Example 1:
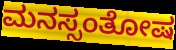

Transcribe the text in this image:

ಮನಸ್ಸಂತೋಷ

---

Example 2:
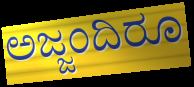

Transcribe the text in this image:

ಅಜ್ಜಂದಿರೂ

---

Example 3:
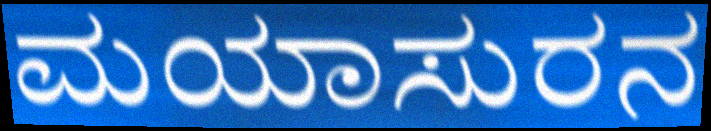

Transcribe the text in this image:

ಮಯಾಸುರನ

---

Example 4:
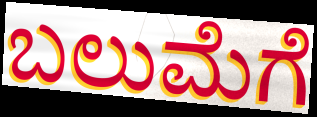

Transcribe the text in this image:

ಬಲುಮೆಗೆ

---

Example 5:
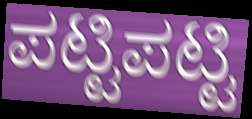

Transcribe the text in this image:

ಪಟ್ಟಿಪಟ್ಟಿ